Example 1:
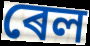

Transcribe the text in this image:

ৰেল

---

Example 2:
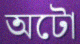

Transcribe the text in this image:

অটো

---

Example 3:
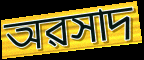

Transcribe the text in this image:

অৱসাদ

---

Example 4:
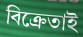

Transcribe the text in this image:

বিক্ৰেতাই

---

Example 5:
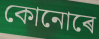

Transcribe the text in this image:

কোনোৰে